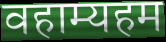
वहाम्यहम